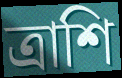
ত্রাশি